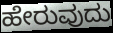
ಹೇರುವುದು